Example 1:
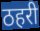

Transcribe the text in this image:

ठहरी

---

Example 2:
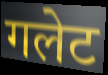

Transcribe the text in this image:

गलेट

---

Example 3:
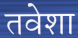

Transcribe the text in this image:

तवेशा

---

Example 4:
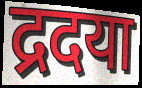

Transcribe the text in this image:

द्रदया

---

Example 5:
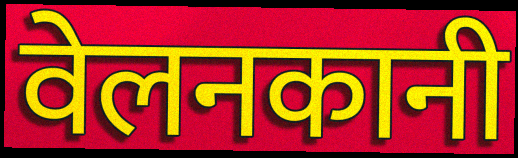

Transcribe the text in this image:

वेलनकानी